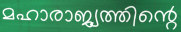
മഹാരാജ്യത്തിന്റെ